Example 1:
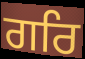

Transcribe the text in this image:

ਗਰਿ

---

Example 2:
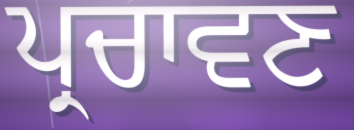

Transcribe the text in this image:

ਪ੍ਰਚਾਵਣ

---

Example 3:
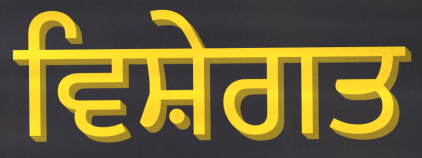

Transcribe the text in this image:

ਵਿਸ਼ੇਗਤ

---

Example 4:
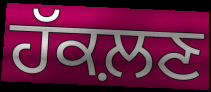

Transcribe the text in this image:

ਹੱਕਲ਼ਣ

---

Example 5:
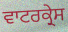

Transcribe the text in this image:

ਵਾਟਰਕ੍ਰੇਸ